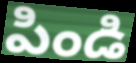
పిండి